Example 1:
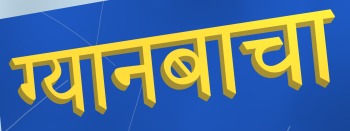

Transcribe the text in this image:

ग्यानबाचा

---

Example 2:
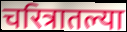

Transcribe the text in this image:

चरित्रातल्या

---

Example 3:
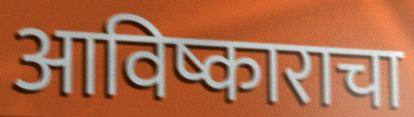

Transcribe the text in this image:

आविष्काराचा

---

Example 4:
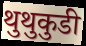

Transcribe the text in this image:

थुथुकुडी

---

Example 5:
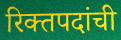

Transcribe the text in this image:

रिक्तपदांची